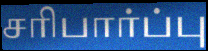
சரிபார்ப்பு